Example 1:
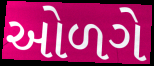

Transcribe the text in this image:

ઓળગે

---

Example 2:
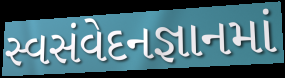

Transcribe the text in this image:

સ્વસંવેદનજ્ઞાનમાં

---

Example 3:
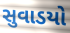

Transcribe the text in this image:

સુવાડયો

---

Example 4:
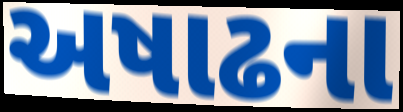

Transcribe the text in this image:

અષાઢના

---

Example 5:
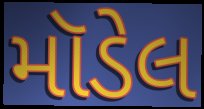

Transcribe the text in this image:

મૉડેલ